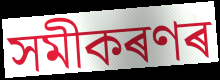
সমীকৰণৰ